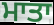
ਮਾਤਾ